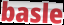
basle